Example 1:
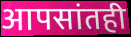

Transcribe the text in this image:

आपसांतही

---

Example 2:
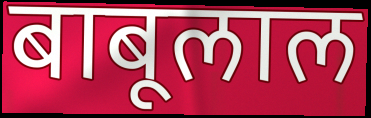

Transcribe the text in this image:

बाबूलाल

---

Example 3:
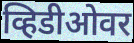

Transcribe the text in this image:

व्हिडीओवर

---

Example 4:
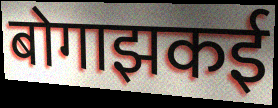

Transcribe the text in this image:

बोगाझकई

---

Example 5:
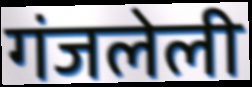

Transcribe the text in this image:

गंजलेली